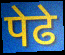
पेढे